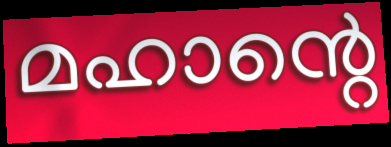
മഹാന്റെ